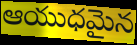
ఆయుధమైన